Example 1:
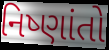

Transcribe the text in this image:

નિષ્ણાંતો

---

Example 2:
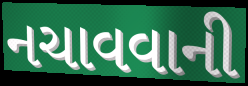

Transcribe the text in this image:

નચાવવાની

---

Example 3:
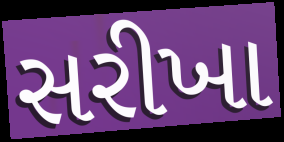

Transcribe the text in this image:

સરીખા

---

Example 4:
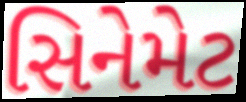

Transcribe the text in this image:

સિનેમેટ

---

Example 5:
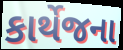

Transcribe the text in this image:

કાર્થેજના